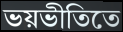
ভয়ভীতিতে